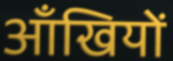
आँखियों